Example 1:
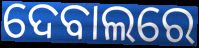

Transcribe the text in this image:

ଦେବାଲରେ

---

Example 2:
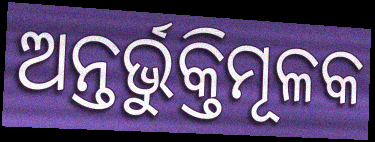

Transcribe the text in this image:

ଅନ୍ତର୍ଭୁକ୍ତିମୂଳକ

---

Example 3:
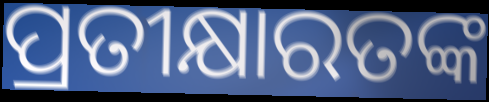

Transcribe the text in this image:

ପ୍ରତୀକ୍ଷାରତଙ୍କ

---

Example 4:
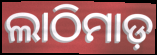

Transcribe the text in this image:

ଲାଠିମାଡ଼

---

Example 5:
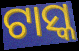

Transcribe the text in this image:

ଟାସ୍କ